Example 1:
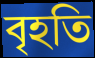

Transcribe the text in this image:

বৃহতি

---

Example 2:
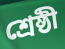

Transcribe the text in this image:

শ্রেষ্ঠী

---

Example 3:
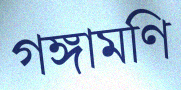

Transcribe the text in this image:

গঙ্গামণি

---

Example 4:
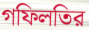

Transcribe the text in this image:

গফিলতির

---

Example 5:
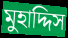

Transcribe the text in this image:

মুহাদ্দিস